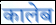
कालेब